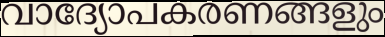
വാദ്യോപകരണങ്ങളും